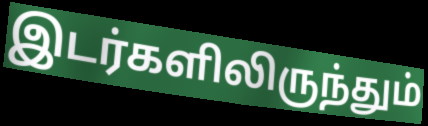
இடர்களிலிருந்தும்